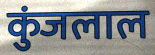
कुंजलाल